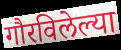
गौरविलेल्या